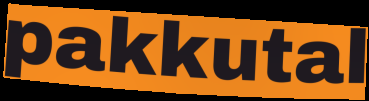
pakkutal